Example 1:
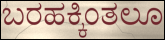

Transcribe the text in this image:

ಬರಹಕ್ಕಿಂತಲೂ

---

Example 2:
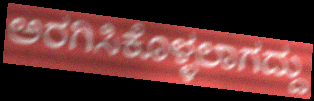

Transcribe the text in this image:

ಅರಗಿಸಿಕೊಳ್ಳಲಾಗದ್ದು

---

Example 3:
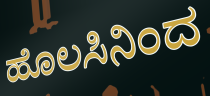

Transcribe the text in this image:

ಹೊಲಸಿನಿಂದ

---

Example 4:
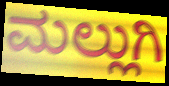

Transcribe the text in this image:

ಮಲ್ಲುಗಿ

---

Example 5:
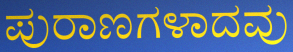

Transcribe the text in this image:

ಪುರಾಣಗಳಾದವು